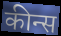
कीन्स